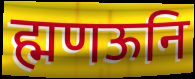
ह्मणऊनि